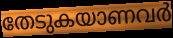
തേടുകയാണവർ